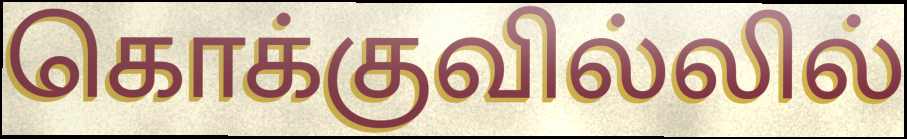
கொக்குவில்லில்